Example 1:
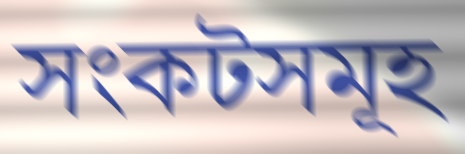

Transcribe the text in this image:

সংকটসমূহ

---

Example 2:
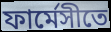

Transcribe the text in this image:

ফার্মেসীতে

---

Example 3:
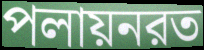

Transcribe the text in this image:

পলায়নরত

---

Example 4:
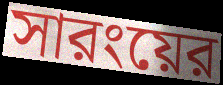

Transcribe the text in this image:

সারংয়ের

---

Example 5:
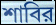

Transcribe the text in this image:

শাবির